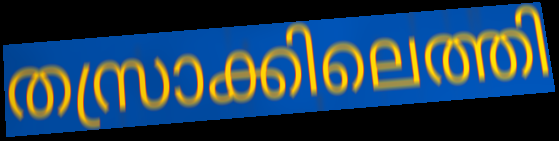
തസ്രാക്കിലെത്തി